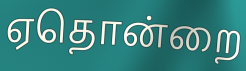
ஏதொன்றை